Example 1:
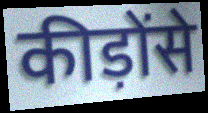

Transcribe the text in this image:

कीड़ोंसे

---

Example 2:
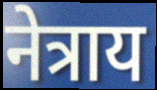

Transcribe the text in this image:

नेत्राय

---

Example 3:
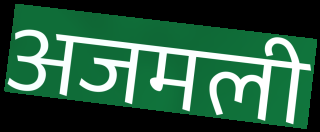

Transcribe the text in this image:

अजमली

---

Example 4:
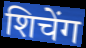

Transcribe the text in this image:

शिचेंग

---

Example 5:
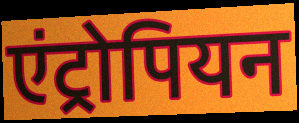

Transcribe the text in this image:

एंट्रोपियन